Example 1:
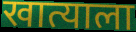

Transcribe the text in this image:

खात्याला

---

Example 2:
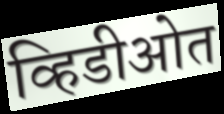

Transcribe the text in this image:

व्हिडीओत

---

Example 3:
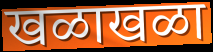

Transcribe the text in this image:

खळाखळा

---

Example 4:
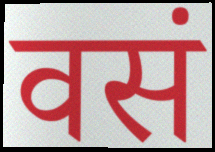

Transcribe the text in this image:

वसं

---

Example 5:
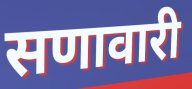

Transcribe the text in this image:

सणावारी